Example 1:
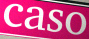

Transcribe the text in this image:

caso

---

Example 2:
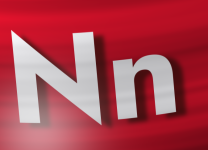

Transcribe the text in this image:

Nn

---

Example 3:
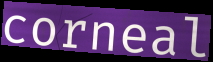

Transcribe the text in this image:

corneal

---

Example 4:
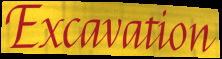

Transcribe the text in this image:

Excavation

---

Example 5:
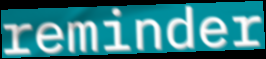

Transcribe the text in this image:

reminder